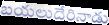
బయలుదేరినాడు